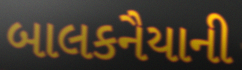
બાલકનૈયાની